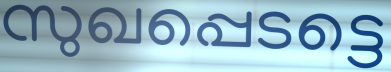
സുഖപ്പെടട്ടെ